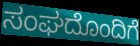
ಸಂಘದೊಂದಿಗೆ